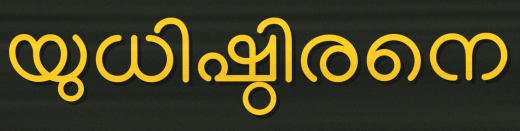
യുധിഷ്ഠിരനെ